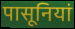
पासूनियां